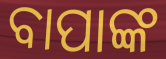
ବାପାଙ୍କ